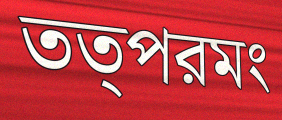
তত্পরমং